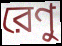
রেণু